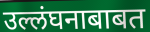
उल्लंघनाबाबत